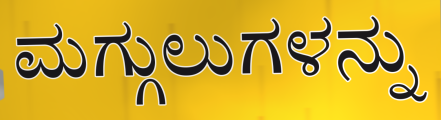
ಮಗ್ಗುಲುಗಳನ್ನು